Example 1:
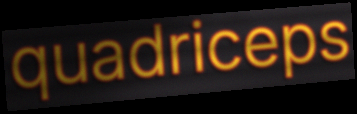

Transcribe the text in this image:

quadriceps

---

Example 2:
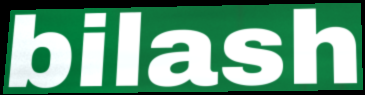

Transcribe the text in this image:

bilash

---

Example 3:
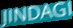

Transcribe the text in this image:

JINDAGI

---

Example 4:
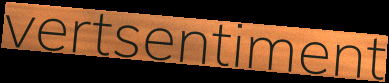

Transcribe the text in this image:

vertsentiment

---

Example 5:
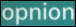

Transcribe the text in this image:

opnion